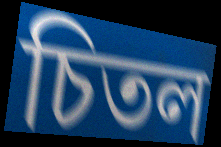
চিতল